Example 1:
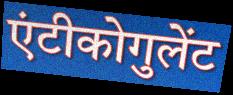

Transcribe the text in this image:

एंटीकोगुलेंट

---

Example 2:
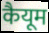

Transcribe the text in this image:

कैयूम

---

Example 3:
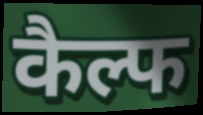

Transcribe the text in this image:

कैल्फ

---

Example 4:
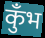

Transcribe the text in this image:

कुँभ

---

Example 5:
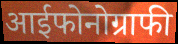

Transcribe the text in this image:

आईफोनोग्राफी